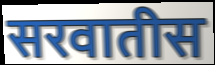
सरवातीस